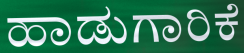
ಹಾಡುಗಾರಿಕೆ